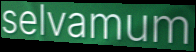
selvamum